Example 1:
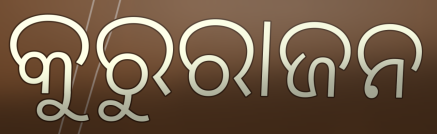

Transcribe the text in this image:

କୁରୁରାଜନ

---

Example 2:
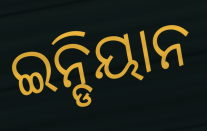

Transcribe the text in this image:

ଇନ୍ଡିୟାନ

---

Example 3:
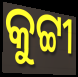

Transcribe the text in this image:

କୁଟ୍ଟୀ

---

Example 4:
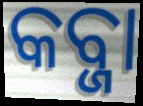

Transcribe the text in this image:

କବ୍ଜା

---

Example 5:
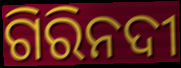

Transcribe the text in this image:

ଗିରିନଦୀ